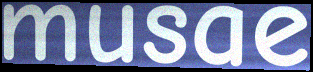
musae